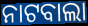
ନାଟବାଲା